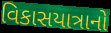
વિકાસયાત્રાનો